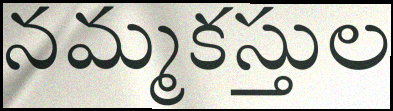
నమ్మకస్తుల